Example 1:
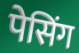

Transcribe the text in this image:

पेसिंग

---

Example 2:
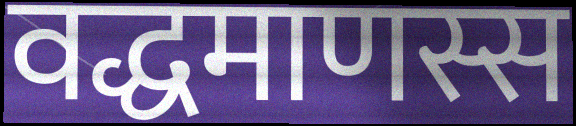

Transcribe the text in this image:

वद्धमाणस्स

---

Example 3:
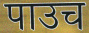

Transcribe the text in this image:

पाउच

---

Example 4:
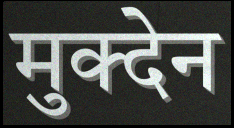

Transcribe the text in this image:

मुक्देन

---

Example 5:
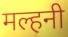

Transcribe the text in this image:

मल्हनी